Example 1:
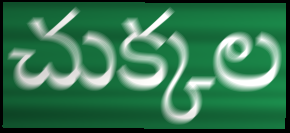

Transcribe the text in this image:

చుక్కల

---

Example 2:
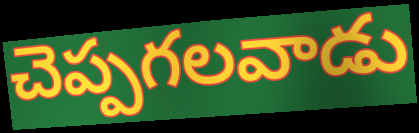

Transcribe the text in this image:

చెప్పగలవాడు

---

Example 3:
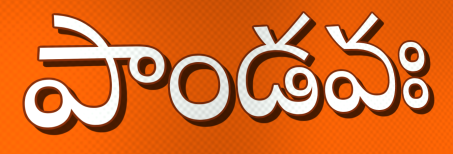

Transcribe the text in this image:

పాండవః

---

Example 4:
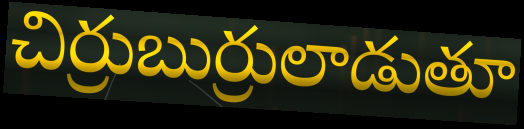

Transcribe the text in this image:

చిర్రుబుర్రులాడుతూ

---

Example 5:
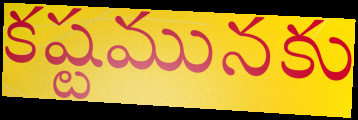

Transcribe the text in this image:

కష్టమునకు